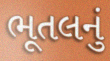
ભૂતલનું